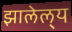
झालेल्य